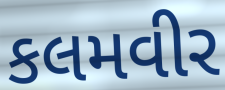
કલમવીર